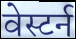
वेस्टर्न